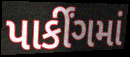
પાર્કીંગમાં